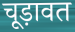
चूड़ावत